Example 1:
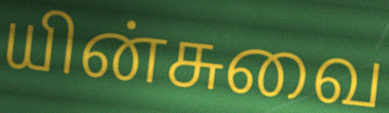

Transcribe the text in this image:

யின்சுவை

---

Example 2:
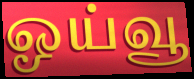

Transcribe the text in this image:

ஓய்வூ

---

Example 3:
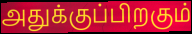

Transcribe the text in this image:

அதுக்குப்பிறகும்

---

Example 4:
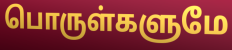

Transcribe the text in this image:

பொருள்களுமே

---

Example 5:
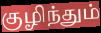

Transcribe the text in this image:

குழிந்தும்